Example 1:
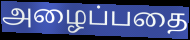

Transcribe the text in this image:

அழைப்பதை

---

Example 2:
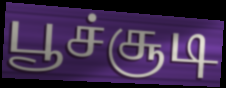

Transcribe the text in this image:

பூச்சூடி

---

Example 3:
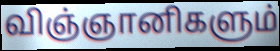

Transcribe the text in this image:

விஞ்ஞானிகளும்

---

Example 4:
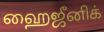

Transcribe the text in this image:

ஹைஜீனிக்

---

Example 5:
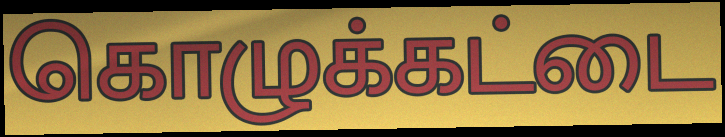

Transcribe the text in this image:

கொழுக்கட்டை